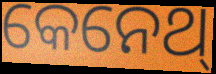
କେନେଥ୍